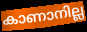
കാണാനില്ല